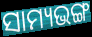
ସାମ୍ଯଭଙ୍ଗ